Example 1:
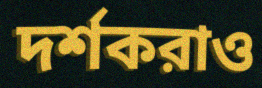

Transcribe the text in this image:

দর্শকরাও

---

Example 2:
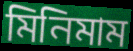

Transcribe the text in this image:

মিনিমাম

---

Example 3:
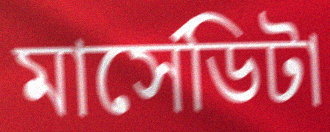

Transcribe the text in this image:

মার্সেডিটা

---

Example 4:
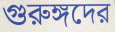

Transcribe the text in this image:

গুরুঙ্গদের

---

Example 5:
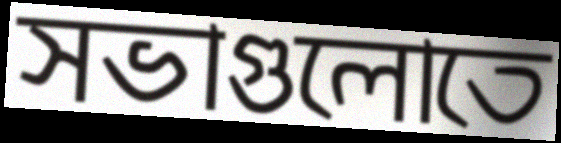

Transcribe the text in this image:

সভাগুলোতে